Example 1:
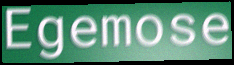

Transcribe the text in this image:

Egemose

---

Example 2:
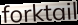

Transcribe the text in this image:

forktail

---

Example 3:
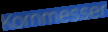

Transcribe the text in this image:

Kornmesser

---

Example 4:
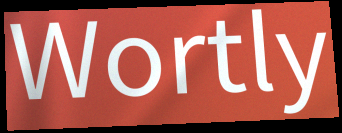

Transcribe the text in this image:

Wortly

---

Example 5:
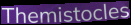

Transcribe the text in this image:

Themistocles